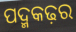
ପଦ୍ମକଢ଼ର